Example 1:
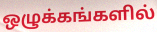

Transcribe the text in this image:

ஒழுக்கங்களில்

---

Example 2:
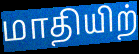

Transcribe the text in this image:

மாதியிற்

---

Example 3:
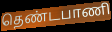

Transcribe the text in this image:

தெண்டபாணி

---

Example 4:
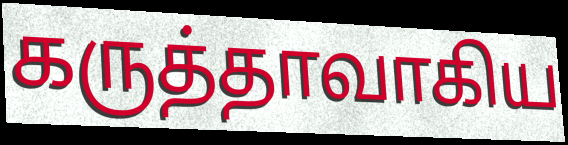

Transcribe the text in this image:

கருத்தாவாகிய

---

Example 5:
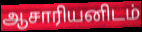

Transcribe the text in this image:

ஆசாரியனிடம்